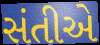
સંતીએ